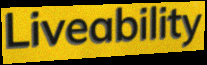
Liveability